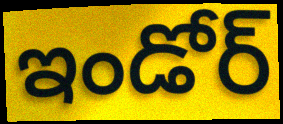
ఇండోర్